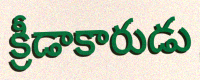
క్రీడాకారుడు